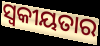
ସ୍ୱକୀୟତାର